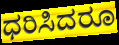
ಧರಿಸಿದರೂ